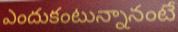
ఎందుకంటున్నానంటే